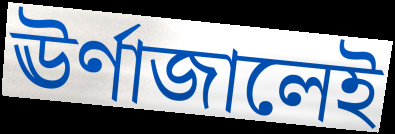
ঊর্ণাজালেই